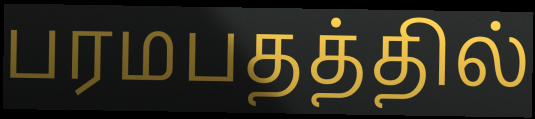
பரமபதத்தில்